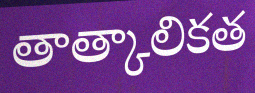
తాత్కాలికత